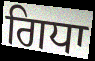
ਗਿਧਾ